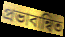
প্রভাবান্বিত